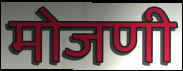
मोजणी